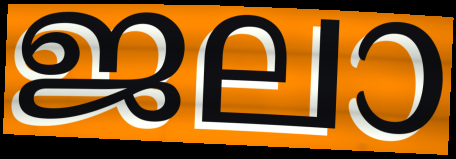
ജലാ